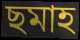
ছমাহ